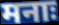
मनाः